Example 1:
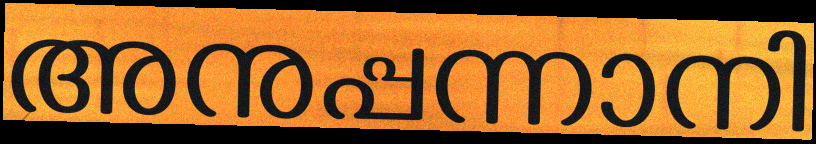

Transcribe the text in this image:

അനുപ്പന്നാനി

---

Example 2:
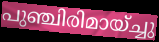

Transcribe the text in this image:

പുഞ്ചിരിമായ്ച്ചു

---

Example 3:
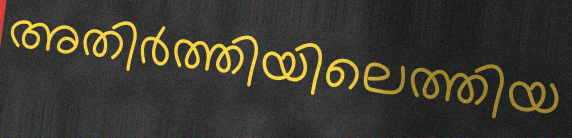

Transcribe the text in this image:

അതിർത്തിയിലെത്തിയ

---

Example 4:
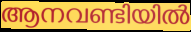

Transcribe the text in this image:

ആനവണ്ടിയിൽ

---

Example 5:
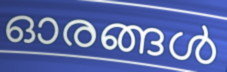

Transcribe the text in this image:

ഓരങ്ങൾ